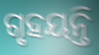
ଗୃହୟନ୍ତି